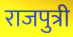
राजपुत्री